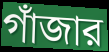
গাঁজার